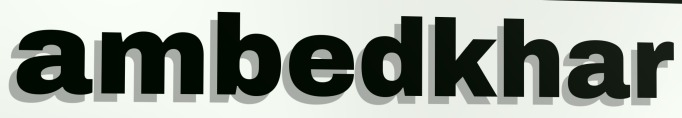
ambedkhar